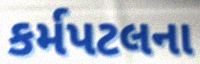
કર્મપટલના